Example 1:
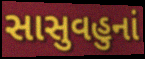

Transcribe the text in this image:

સાસુવહુનાં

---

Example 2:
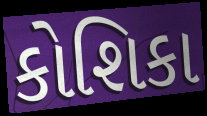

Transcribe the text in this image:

કોશિકા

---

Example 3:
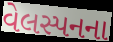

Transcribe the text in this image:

વેલસ્પનના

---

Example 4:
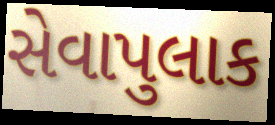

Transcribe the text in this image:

સેવાપુલાક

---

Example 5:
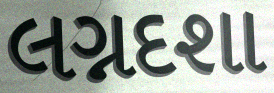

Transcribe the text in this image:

લગ્નદશા